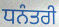
ਧਨੰਤਰੀ